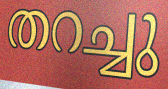
തറച്ചു